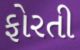
ફોરતી